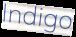
Indigo